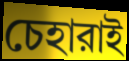
চেহারাই